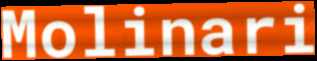
Molinari